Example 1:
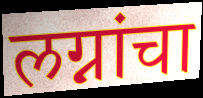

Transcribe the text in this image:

लग्नांचा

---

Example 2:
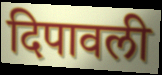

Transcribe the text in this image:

दिपावली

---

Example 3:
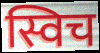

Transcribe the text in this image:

स्विच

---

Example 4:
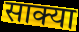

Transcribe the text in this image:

साक्या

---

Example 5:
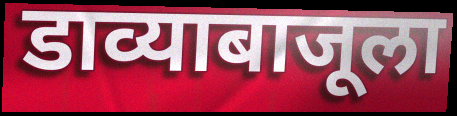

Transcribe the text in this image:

डाव्याबाजूला